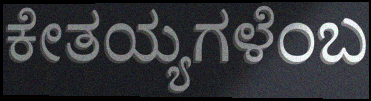
ಕೇತಯ್ಯಗಳೆಂಬ